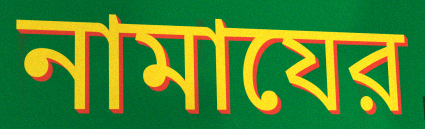
নামাযের